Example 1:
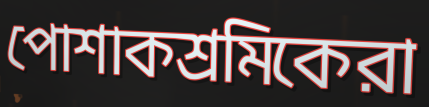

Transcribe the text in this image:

পোশাকশ্রমিকেরা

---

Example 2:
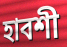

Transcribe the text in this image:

হাবশী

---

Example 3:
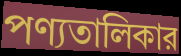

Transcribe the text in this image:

পণ্যতালিকার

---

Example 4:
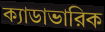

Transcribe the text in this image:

ক্যাডাভারিক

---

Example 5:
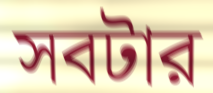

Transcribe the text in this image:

সবটার